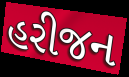
હરીજન